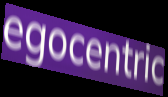
egocentric